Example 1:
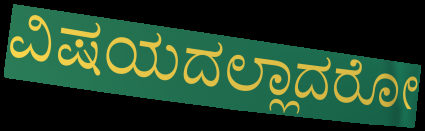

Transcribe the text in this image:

ವಿಷಯದಲ್ಲಾದರೋ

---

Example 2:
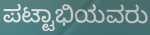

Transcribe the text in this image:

ಪಟ್ಟಾಭಿಯವರು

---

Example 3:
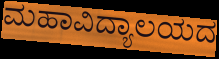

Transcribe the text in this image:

ಮಹಾವಿದ್ಯಾಲಯದ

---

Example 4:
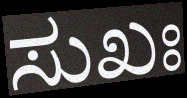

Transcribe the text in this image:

ಸುಖಃ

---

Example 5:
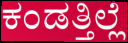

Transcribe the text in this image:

ಕಂಡತ್ತಿಲ್ಲೆ